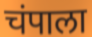
चंपाला